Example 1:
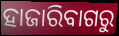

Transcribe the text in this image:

ହାଜାରିବାଗରୁ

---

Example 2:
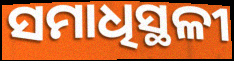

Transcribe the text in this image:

ସମାଧିସ୍ଥଳୀ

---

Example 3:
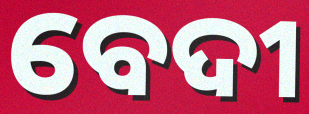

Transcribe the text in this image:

ବେଦୀ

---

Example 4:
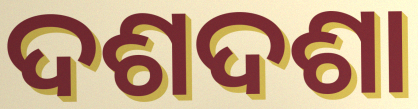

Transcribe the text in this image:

ଦଶଦଶା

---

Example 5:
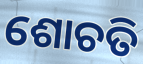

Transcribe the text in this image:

ଶୋଚତି